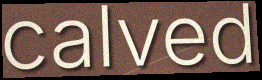
calved